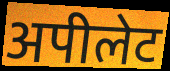
अपीलेट